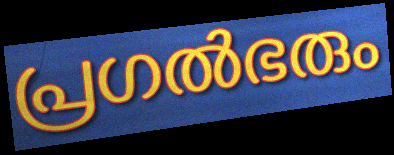
പ്രഗൽഭരും